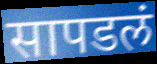
सापडलं